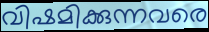
വിഷമിക്കുന്നവരെ